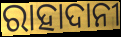
ରାହାଦାନୀ